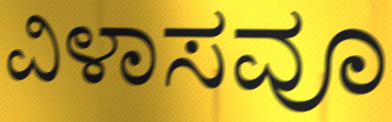
ವಿಳಾಸವೂ